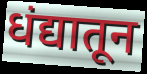
धंद्यातून